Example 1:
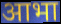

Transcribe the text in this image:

आभा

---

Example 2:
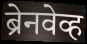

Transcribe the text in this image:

ब्रेनवेव्ह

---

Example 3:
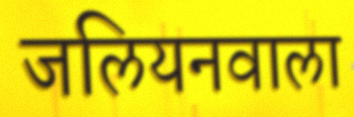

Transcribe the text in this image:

जलियनवाला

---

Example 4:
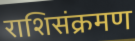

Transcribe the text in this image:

राशिसंक्रमण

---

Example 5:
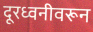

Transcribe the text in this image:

दूरध्वनीवरून